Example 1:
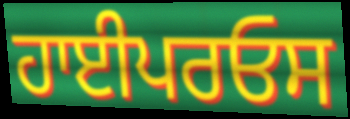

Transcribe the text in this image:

ਹਾਈਪਰਓਸ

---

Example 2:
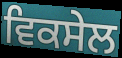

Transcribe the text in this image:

ਵਿਕਸੇਲ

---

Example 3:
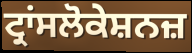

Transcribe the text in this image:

ਟ੍ਰਾਂਸਲੋਕੇਸ਼ਨਜ਼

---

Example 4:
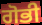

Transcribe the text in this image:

ਗੋਭੀ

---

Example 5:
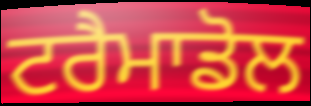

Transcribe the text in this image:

ਟਰੈਮਾਡੋਲ